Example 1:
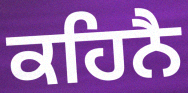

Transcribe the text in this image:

ਕਹਿਨੈ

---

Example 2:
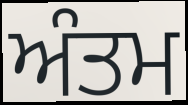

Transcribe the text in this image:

ਅੰਤਮ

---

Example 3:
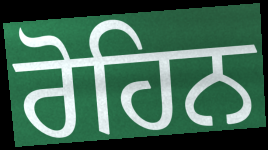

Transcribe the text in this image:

ਰੋਹਿਨ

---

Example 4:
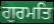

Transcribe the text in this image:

ਗੁਰਮਤਿ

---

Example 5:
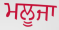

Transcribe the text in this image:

ਮਲੂਜਾ